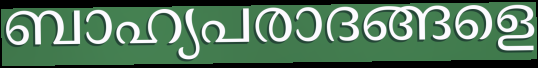
ബാഹ്യപരാദങ്ങളെ